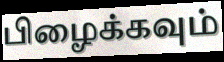
பிழைக்கவும்